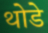
थोडे